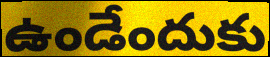
ఉండేందుకు